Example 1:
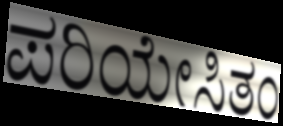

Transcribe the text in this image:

ಪರಿಯೇಸಿತಂ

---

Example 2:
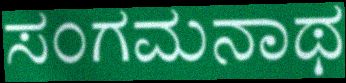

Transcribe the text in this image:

ಸಂಗಮನಾಥ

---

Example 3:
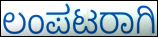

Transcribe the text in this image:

ಲಂಪಟರಾಗಿ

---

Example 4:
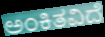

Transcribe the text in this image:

ಅಂಕಿತವಿದೆ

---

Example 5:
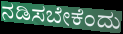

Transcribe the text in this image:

ನಡಿಸಬೇಕೆಂದು